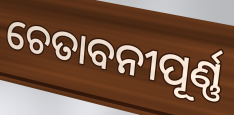
ଚେତାବନୀପୂର୍ଣ୍ଣ